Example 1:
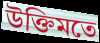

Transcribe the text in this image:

উক্তিমতে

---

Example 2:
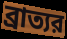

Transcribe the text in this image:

ব্রাত্যর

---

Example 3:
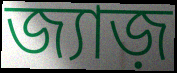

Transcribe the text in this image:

জ্যাজ়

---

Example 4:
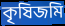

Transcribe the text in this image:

কৃষিজমি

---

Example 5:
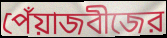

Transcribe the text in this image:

পেঁয়াজবীজের